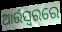
ଆର୍ତ୍ତସ୍ଵରରେ